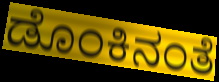
ಡೊಂಕಿನಂತೆ